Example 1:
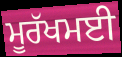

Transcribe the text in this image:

ਮੂਰੱਖਮਈ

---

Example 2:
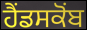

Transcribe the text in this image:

ਹੈਂਡਸਕੋਂਬ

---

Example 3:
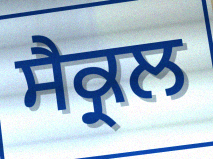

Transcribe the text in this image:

ਸੈਕ੍ਰਲ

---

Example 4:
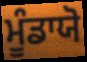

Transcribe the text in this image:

ਮੂੰਡਾਯੋ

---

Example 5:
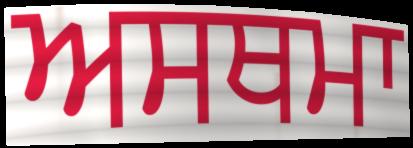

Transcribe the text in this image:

ਅਸਥਮਾ